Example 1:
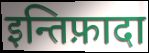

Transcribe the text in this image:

इन्तिफ़ादा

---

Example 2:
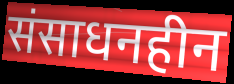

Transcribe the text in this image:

संसाधनहीन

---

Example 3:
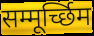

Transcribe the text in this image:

सम्मूर्च्छिम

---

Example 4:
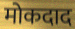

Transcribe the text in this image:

मोकदाद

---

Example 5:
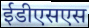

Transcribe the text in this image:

ईडीएसएस